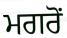
ਮਗਰੋਂ